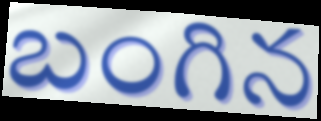
బంగిన